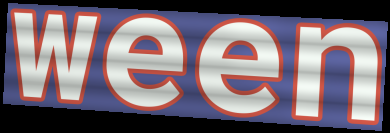
ween